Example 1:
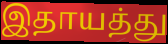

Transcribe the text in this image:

இதாயத்து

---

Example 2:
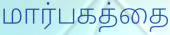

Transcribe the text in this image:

மார்பகத்தை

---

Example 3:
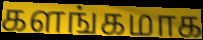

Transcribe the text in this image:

களங்கமாக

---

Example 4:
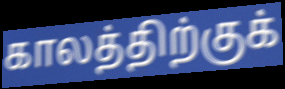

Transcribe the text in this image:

காலத்திற்குக்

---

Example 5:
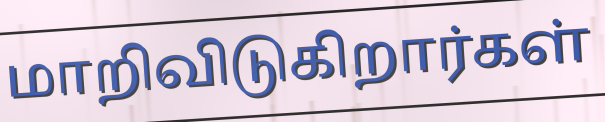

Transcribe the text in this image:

மாறிவிடுகிறார்கள்